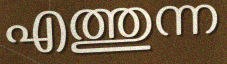
എത്തുന്ന